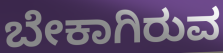
ಬೇಕಾಗಿರುವ